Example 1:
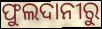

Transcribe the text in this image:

ଫୁଲଦାନୀରୁ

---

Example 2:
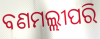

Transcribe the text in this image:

ବଣମଲ୍ଲୀପରି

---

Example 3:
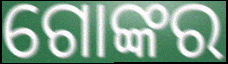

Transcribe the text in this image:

ଗୋଙ୍କର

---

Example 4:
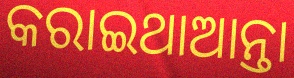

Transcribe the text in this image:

କରାଇଥାଆନ୍ତା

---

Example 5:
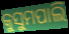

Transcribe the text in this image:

କୁସୁମପାଲି